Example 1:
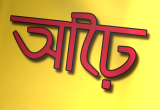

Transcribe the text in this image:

আঢ়ৈ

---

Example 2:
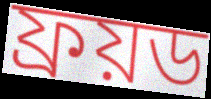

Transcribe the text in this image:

ফ্ৰয়ড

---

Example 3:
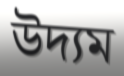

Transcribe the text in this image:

উদ্যম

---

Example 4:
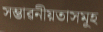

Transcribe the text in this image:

সম্ভাৱনীয়তাসমূহ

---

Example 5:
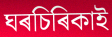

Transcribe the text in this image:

ঘৰচিৰিকাই